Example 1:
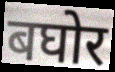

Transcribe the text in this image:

बघोर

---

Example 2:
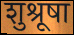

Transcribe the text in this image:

शुश्रूषा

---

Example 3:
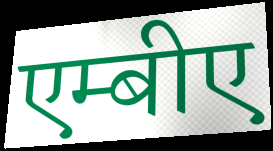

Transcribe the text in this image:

एम्बीए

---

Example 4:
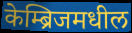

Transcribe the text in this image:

केम्ब्रिजमधील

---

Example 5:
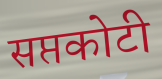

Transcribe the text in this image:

सप्तकोटी